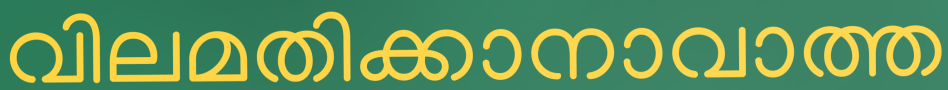
വിലമതിക്കാനാവാത്ത